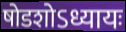
षोडशोऽध्यायः